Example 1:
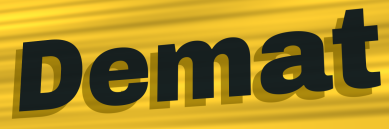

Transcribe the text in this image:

Demat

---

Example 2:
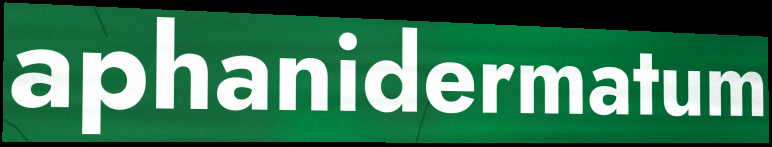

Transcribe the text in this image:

aphanidermatum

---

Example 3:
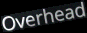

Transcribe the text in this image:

Overhead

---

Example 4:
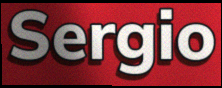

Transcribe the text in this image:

Sergio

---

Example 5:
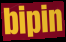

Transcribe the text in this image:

bipin